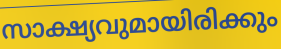
സാക്ഷ്യവുമായിരിക്കും